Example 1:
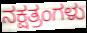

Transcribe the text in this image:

ನಕ್ಷತ್ರಂಗಳು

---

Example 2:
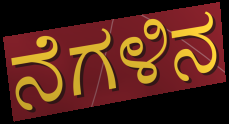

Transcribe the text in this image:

ನೆಗಳಿನ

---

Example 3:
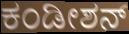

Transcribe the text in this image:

ಕಂಡೀಶನ್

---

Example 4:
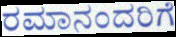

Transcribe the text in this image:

ರಮಾನಂದರಿಗೆ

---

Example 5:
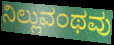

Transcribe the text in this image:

ನಿಲ್ಲುವಂಥವು